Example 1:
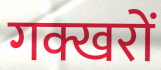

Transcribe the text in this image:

गक्खरों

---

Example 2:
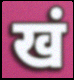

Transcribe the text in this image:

खं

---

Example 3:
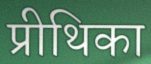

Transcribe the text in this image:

प्रीथिका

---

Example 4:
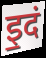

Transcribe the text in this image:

इ॒दं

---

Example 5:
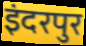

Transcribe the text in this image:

इंदरपुर